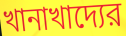
খানাখাদ্যের